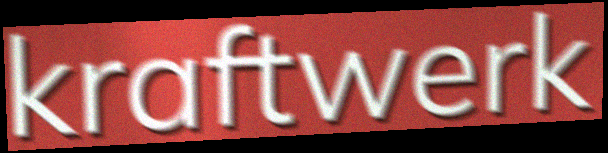
kraftwerk